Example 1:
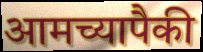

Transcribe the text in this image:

आमच्यापैकी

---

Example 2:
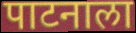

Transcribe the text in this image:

पाटनाला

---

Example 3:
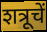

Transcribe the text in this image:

शत्रूचें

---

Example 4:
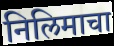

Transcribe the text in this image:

निलिमाचा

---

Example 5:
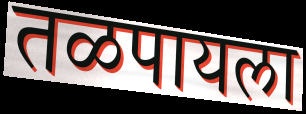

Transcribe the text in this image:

तळपायला